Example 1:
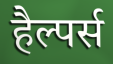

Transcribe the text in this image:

हैल्पर्स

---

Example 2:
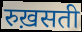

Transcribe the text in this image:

रुख़सती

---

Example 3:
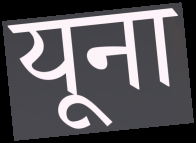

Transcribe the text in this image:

यूना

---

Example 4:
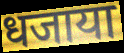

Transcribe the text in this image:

धजाया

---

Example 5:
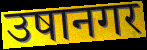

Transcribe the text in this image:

उषानगर